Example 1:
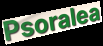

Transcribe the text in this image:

Psoralea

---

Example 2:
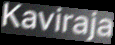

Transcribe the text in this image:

Kaviraja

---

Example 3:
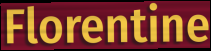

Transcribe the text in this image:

Florentine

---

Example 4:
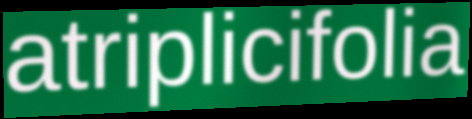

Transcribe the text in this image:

atriplicifolia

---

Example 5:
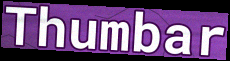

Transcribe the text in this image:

Thumbar